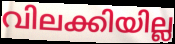
വിലക്കിയില്ല